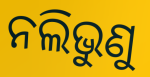
ନଲିଭୁଣୁ